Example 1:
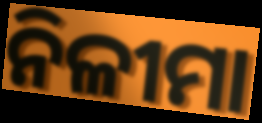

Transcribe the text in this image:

ନିଳୀମା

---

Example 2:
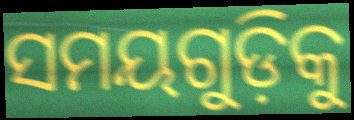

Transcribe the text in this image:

ସମୟଗୁଡ଼ିକୁ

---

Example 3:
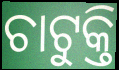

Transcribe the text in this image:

ଚାଟୁକ୍ତି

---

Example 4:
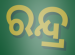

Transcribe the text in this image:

ରନ୍ଦ୍ର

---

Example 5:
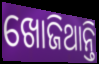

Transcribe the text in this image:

ଖୋଜିଥାନ୍ତି